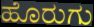
ಹೊರುಗು